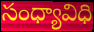
సంధ్యావిధి